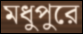
মধুপুরে